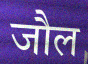
जौल